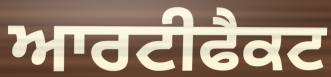
ਆਰਟੀਫੈਕਟ